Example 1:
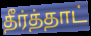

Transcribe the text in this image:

தீர்த்தாட்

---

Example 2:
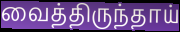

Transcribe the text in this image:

வைத்திருந்தாய்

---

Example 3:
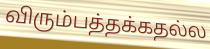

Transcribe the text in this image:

விரும்பத்தக்கதல்ல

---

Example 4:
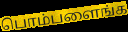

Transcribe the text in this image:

பொம்பளைங்க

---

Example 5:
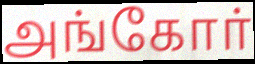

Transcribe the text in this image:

அங்கோர்